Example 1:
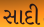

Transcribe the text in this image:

સાદી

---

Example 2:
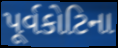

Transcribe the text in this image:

પૂર્વકોટિના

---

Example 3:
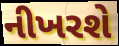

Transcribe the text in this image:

નીખરશે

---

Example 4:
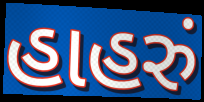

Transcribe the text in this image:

હાહરું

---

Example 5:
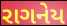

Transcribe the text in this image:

રાગનેય